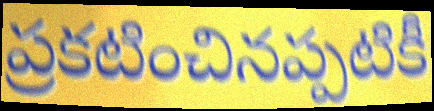
ప్రకటించినప్పటికీ